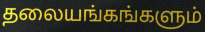
தலையங்கங்களும்